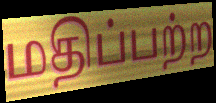
மதிப்பற்ற